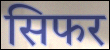
सिफर